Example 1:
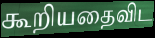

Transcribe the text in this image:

கூறியதைவிட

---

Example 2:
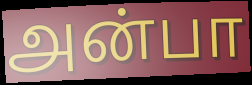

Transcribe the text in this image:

அன்பா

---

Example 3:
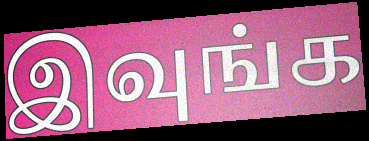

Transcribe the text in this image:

இவுங்க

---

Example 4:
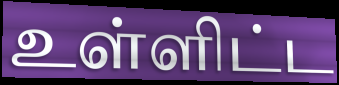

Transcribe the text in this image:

உள்ளிட்ட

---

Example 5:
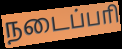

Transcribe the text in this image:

நடைப்பரி